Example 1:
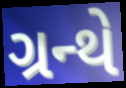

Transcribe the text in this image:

ગ્રન્થે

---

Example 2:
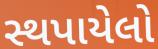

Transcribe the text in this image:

સ્થપાયેલો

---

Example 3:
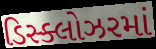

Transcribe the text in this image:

ડિસ્ક્લોઝરમાં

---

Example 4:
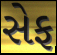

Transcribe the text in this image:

સેફ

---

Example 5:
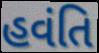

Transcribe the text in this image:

હવંતિ